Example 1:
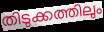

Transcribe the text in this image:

തിടുക്കത്തിലും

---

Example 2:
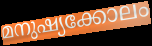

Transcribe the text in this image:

മനുഷ്യക്കോലം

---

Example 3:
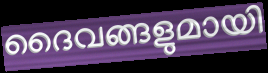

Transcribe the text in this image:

ദൈവങ്ങളുമായി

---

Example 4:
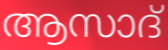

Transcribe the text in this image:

ആസാദ്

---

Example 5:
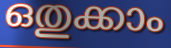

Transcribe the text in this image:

ഒതുക്കാം